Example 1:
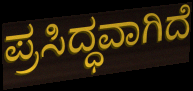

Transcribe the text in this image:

ಪ್ರಸಿದ್ಧವಾಗಿದೆ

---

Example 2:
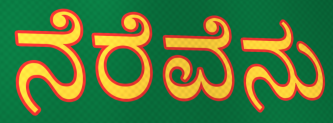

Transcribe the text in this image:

ನೆರೆವೆನು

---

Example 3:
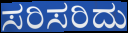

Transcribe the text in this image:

ಸರಿಸರಿದು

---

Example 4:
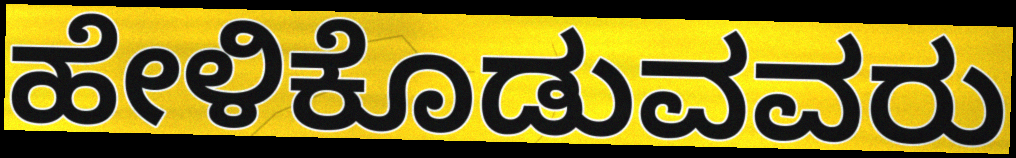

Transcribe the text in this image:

ಹೇಳಿಕೊಡುವವರು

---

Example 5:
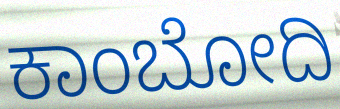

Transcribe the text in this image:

ಕಾಂಬೋದಿ